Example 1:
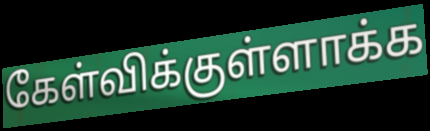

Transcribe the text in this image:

கேள்விக்குள்ளாக்க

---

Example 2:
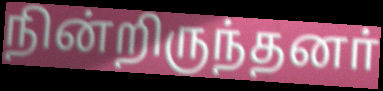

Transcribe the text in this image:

நின்றிருந்தனர்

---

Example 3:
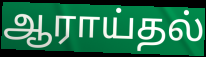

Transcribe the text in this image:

ஆராய்தல்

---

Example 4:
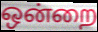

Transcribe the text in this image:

ஒன்றை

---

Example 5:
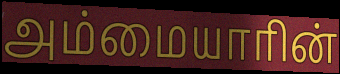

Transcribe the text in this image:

அம்மையாரின்